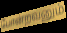
போன்றவனும்